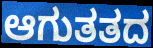
ಆಗುತತದ